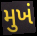
મુખં